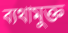
ব্যথামুক্ত